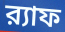
র‍্যাফ